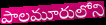
పాలమూరులోని